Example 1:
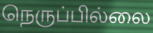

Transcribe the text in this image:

நெருப்பில்லை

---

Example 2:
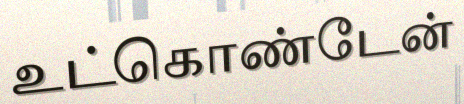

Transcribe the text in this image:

உட்கொண்டேன்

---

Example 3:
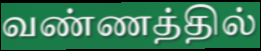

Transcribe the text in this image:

வண்ணத்தில்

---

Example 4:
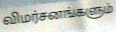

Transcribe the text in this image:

விமர்சனங்களும்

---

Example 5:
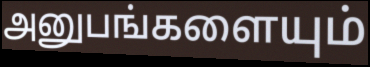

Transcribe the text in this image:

அனுபங்களையும்